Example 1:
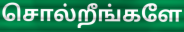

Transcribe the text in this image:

சொல்றீங்களே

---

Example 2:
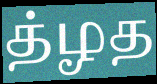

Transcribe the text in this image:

த்ழத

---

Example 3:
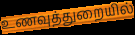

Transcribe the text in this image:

உணவுத்துறையில்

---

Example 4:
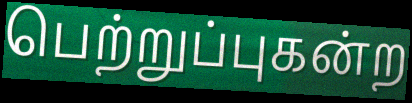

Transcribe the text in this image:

பெற்றுப்புகன்ற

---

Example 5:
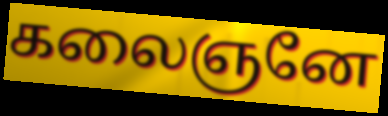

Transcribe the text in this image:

கலைஞனே